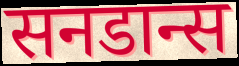
सनडान्स